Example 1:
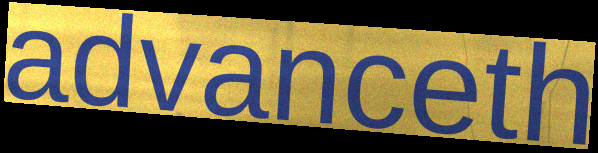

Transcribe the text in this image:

advanceth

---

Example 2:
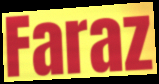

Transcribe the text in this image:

Faraz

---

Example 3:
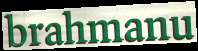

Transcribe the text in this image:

brahmanu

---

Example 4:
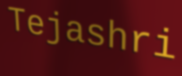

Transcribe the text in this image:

Tejashri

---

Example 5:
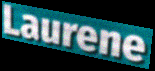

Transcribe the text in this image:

Laurene